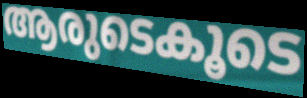
ആരുടെകൂടെ